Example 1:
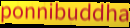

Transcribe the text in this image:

ponnibuddha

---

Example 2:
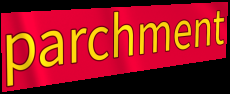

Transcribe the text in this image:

parchment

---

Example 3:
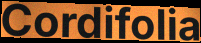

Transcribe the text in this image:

Cordifolia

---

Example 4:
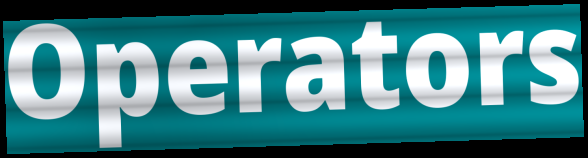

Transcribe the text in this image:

Operators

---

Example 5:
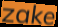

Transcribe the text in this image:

zake